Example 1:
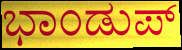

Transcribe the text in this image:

ಭಾಂಡುಪ್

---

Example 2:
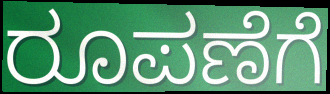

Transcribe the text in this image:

ರೂಪಣೆಗೆ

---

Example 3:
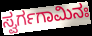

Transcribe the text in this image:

ಸ್ವರ್ಗಗಾಮಿನಃ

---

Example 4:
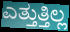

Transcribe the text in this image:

ಎತ್ತುತ್ತಿಲ್ಲ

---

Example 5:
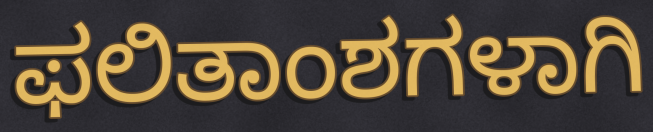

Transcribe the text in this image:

ಫಲಿತಾಂಶಗಳಾಗಿ